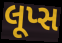
લૂપ્સ